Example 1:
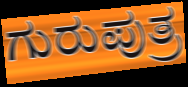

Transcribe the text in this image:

ಗುರುಪುತ್ರ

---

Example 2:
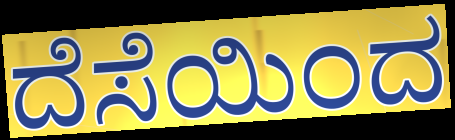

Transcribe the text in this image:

ದೆಸೆಯಿಂದ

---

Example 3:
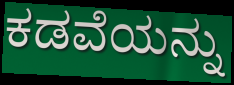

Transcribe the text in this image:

ಕಡವೆಯನ್ನು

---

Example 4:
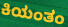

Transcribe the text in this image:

ಕಿಯಂತಂ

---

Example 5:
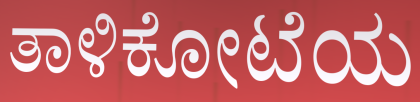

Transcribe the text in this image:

ತಾಳಿಕೋಟೆಯ